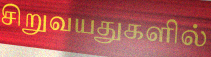
சிறுவயதுகளில்